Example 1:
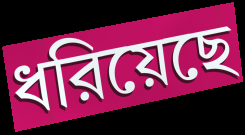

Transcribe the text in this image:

ধরিয়েছে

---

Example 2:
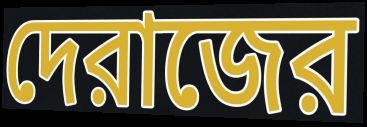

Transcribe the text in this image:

দেরাজের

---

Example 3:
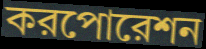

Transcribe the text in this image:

করপোরেশন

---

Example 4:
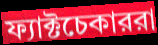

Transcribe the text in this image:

ফ্যাক্টচেকাররা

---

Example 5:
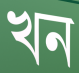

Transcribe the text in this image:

খন